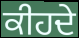
ਕੀਹਦੇ